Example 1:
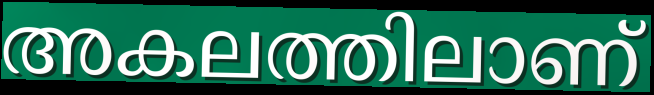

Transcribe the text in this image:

അകലത്തിലാണ്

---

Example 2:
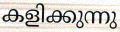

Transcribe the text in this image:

കളിക്കുന്നു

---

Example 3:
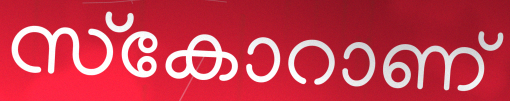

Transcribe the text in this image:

സ്‌കോറാണ്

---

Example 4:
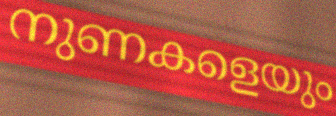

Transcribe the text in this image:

നുണകളെയും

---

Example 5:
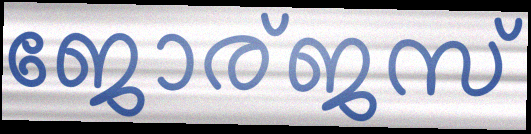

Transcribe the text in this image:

ജോര്ജസ്